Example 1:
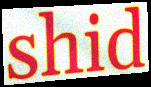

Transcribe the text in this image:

shid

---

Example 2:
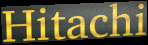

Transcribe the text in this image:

Hitachi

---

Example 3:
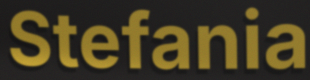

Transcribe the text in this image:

Stefania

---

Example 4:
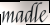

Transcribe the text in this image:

madle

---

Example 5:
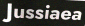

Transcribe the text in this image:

Jussiaea